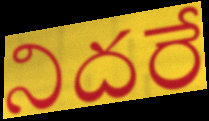
నిదరే